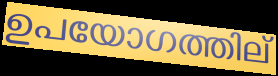
ഉപയോഗത്തില്